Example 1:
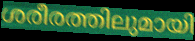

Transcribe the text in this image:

ശരീരത്തിലുമായി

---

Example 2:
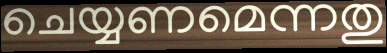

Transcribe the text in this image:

ചെയ്യണമെന്നതു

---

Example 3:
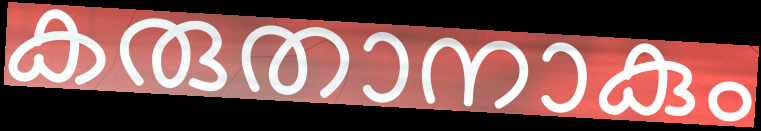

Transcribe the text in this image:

കരുതാനാകും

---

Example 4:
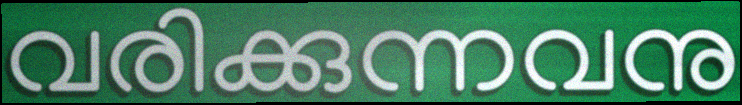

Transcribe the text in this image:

വരിക്കുന്നവനു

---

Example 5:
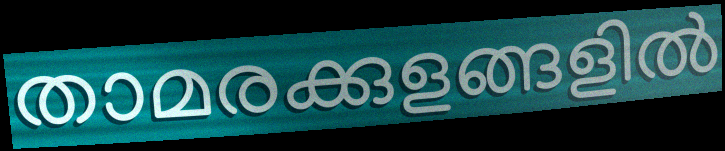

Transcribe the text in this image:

താമരക്കുളങ്ങളിൽ